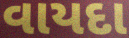
વાયદા